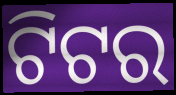
ଟିଟର